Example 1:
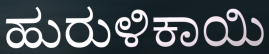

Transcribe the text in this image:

ಹುರುಳಿಕಾಯಿ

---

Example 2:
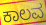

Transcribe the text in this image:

ಕಾಲವ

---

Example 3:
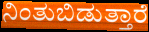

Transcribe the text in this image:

ನಿಂತುಬಿಡುತ್ತಾರೆ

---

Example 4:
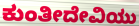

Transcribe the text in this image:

ಕುಂತೀದೇವಿಯು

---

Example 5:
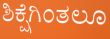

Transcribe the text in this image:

ಶಿಕ್ಷೆಗಿಂತಲೂ